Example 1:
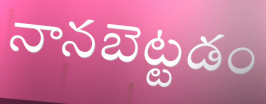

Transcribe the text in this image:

నానబెట్టడం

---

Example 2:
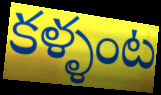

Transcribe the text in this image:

కళ్ళంట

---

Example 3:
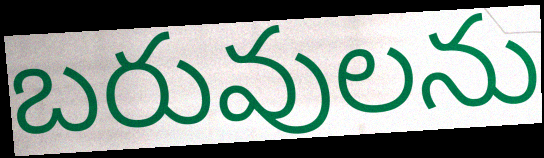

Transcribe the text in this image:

బరువులను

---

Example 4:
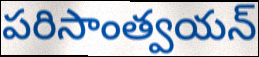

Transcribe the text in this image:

పరిసాంత్వయన్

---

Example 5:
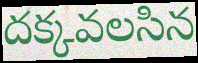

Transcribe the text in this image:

దక్కవలసిన